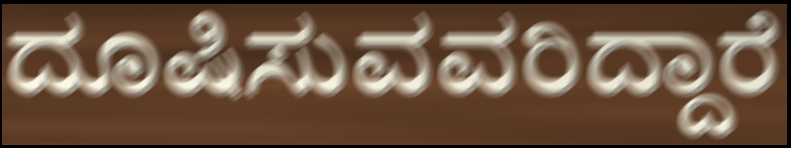
ದೂಷಿಸುವವರಿದ್ದಾರೆ